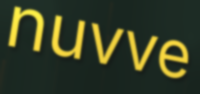
nuvve